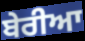
ਬੇਰੀਆ